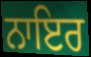
ਨਾਇਰ